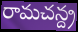
రామచన్ద్ర